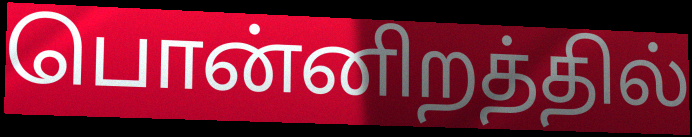
பொன்னிறத்தில்